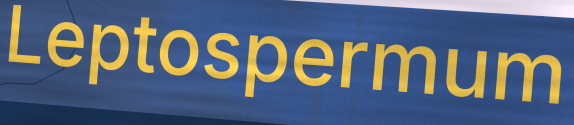
Leptospermum